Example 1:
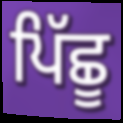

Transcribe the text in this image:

ਪਿੱਛੂ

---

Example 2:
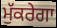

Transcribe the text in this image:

ਮੁੱਕਰੇਗਾ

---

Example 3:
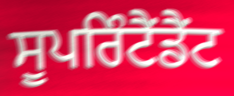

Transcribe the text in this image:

ਸੂਪਰਿੰਟੈਂਡੈਂਟ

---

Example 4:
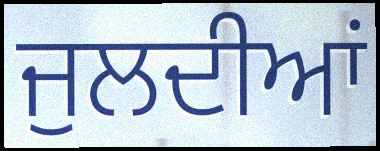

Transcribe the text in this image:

ਜੁਲਦੀਆਂ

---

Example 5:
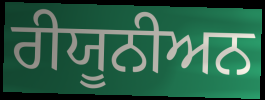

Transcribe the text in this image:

ਰੀਯੂਨੀਅਨ